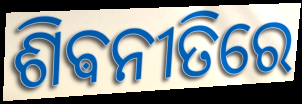
ଶିଵନୀତିରେ